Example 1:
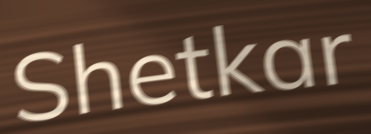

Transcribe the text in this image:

Shetkar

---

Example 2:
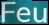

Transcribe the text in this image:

Feu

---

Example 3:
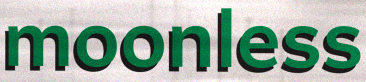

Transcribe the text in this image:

moonless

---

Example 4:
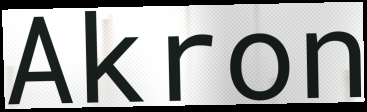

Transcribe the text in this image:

Akron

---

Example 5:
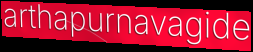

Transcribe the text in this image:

arthapurnavagide